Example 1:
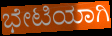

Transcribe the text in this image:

ಭೇಟಿಯಾಗಿ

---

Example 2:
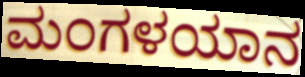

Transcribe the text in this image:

ಮಂಗಳಯಾನ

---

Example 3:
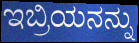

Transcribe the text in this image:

ಇಬ್ರಿಯನನ್ನು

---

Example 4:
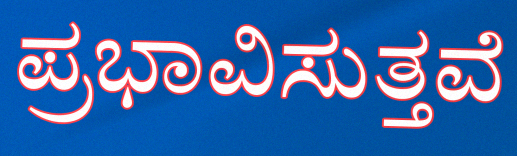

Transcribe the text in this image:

ಪ್ರಭಾವಿಸುತ್ತವೆ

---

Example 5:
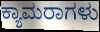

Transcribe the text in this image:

ಕ್ಯಾಮರಾಗಳು